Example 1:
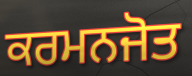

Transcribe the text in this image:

ਕਰਮਨਜੋਤ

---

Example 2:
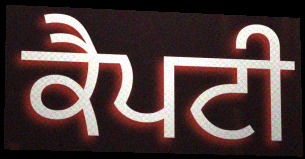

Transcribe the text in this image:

ਕੈਪਟੀ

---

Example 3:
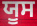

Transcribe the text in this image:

ਯੂਸ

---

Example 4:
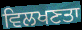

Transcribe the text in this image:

ਵਿਲਖਣਤਾ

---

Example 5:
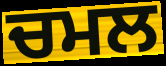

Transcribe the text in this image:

ਚਮਲ